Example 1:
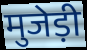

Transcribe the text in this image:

मुजेड़ी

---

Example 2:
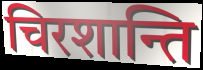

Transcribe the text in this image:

चिरशान्ति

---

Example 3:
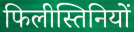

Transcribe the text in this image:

फिलीस्तिनियों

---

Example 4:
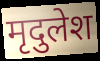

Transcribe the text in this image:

मृदुलेश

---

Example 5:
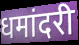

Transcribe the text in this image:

धमांदरी